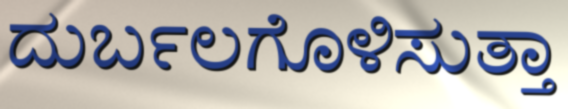
ದುರ್ಬಲಗೊಳಿಸುತ್ತಾ